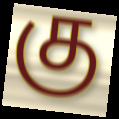
கு